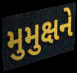
મુમુક્ષને